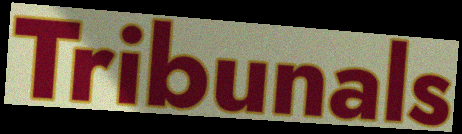
Tribunals